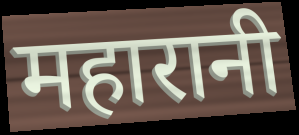
महारानी